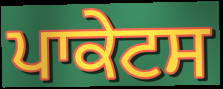
ਪਾਕੇਟਸ